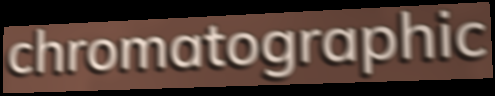
chromatographic